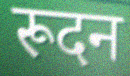
रूदन